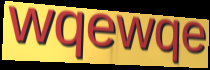
wqewqe